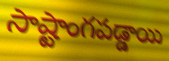
సాష్టాంగపడ్డాయి